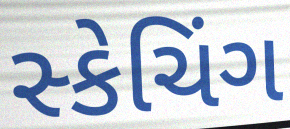
સ્કેચિંગ